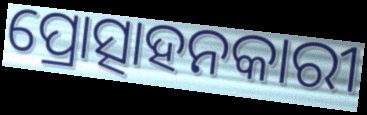
ପ୍ରୋତ୍ସାହନକାରୀ